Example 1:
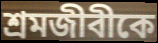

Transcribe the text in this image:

শ্রমজীবীকে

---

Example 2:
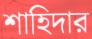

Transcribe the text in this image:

শাহিদার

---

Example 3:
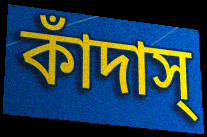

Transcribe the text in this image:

কাঁদাস্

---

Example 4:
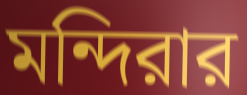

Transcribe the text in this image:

মন্দিরার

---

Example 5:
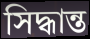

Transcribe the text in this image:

সিদ্ধান্ত